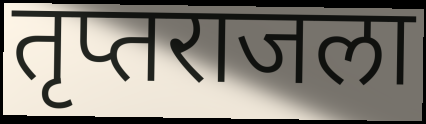
तृप्तराजला